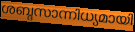
ശബ്ദസാന്നിധ്യമായി